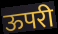
ऊपरी